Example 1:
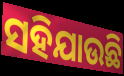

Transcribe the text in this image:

ସହିଯାଉଛି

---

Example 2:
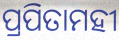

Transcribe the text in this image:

ପ୍ରପିତାମହୀ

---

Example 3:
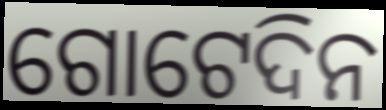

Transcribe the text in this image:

ଗୋଟେଦିନ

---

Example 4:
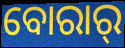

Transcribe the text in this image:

ବୋରାର୍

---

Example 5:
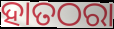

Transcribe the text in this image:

ହାତଠରା